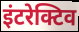
इंटरेक्टिव